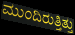
ಮುಂದಿರುತ್ತಿತ್ತು